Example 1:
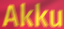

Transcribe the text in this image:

Akku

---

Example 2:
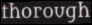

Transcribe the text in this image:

thorough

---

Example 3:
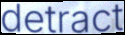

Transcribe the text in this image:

detract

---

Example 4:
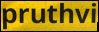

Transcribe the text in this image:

pruthvi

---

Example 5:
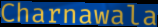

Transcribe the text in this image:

Charnawala